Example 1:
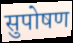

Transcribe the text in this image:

सुपोषण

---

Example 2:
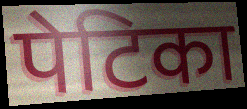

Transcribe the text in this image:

पेटिका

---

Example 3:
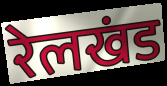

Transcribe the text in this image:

रेलखंड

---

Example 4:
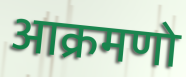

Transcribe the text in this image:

आक्रमणो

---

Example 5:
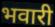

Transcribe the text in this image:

भवारी